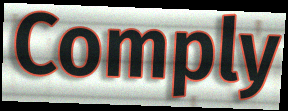
Comply